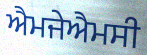
ਐਮਜੇਐਮਸੀ